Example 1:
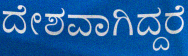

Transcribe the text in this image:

ದೇಶವಾಗಿದ್ದರೆ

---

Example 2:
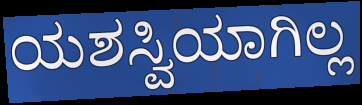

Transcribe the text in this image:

ಯಶಸ್ವಿಯಾಗಿಲ್ಲ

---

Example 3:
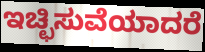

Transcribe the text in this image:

ಇಚ್ಛಿಸುವೆಯಾದರೆ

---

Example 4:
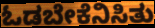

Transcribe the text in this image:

ಓಡಬೇಕೆನಿಸಿತು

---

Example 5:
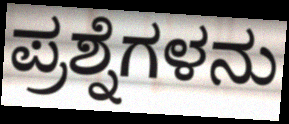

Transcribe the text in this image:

ಪ್ರಶ್ನೆಗಳನು